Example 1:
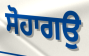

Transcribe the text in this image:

ਸੋਹਾਗਉ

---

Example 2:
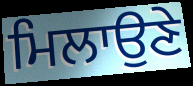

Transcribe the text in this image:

ਮਿਲਾਉਣੇ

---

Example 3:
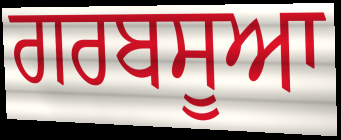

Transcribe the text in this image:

ਗਰਬਸੂਆ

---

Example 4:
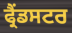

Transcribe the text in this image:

ਫ੍ਰੈਂਡਸਟਰ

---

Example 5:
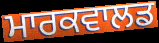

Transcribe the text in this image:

ਮਾਰਕਵਾਲਡ